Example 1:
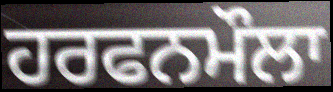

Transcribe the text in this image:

ਹਰਫਨਮੌਲਾ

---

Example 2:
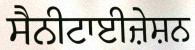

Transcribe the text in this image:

ਸੈਨੀਟਾਈਜ਼ੇਸ਼ਨ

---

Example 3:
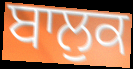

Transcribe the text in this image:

ਬਾਲੁਕ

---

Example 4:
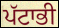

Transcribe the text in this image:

ਪੱਟਾਭੀ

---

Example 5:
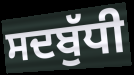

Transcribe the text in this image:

ਸਦਬੁੱਧੀ